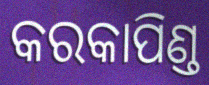
କରକାପିଣ୍ଡ